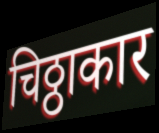
चिठ्ठाकार